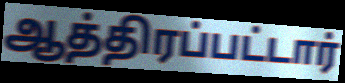
ஆத்திரப்பட்டார்